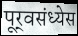
पूर्वसंध्येस